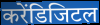
करेंडिजिटल